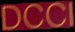
DCCI